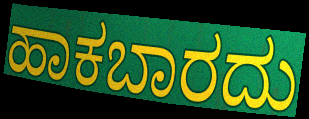
ಹಾಕಬಾರದು